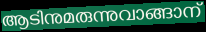
ആടിനുമരുന്നുവാങ്ങാന്